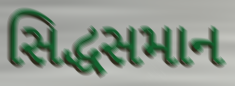
સિદ્ધસમાન